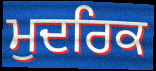
ਮੁਦਰਿਕ